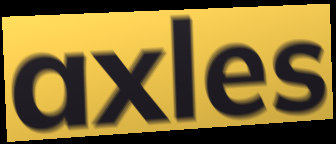
axles